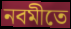
নবমীতে